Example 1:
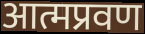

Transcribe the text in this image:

आत्मप्रवण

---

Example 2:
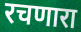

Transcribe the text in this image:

रचणारा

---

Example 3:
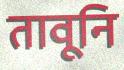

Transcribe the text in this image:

तावूनि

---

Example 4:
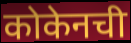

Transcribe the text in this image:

कोकेनची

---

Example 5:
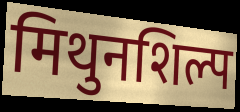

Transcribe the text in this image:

मिथुनशिल्प